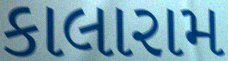
કાલારામ